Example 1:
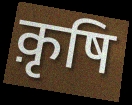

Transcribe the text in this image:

क़ृषि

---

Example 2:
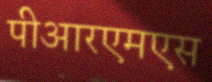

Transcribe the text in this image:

पीआरएमएस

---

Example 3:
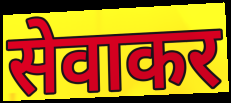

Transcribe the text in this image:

सेवाकर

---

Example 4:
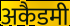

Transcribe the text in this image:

अकैडमी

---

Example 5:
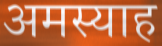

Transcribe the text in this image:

अमस्याह